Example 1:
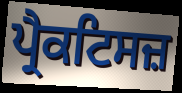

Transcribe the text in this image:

ਪ੍ਰੈਕਟਿਸਜ਼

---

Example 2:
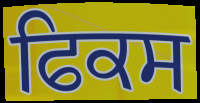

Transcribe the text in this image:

ਫਿਕਸ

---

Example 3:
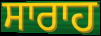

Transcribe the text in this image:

ਸਾਰਾਹ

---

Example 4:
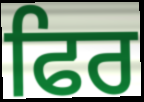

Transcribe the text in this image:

ਫਿਰ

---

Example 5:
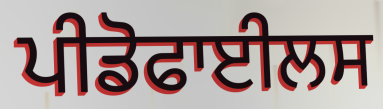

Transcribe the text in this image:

ਪੀਡੋਫਾਈਲਸ